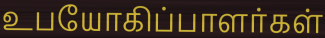
உபயோகிப்பாளர்கள்